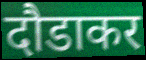
दौडाकर